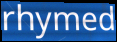
rhymed